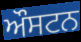
ਔਸਟਨ